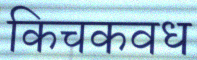
किचकवध